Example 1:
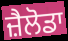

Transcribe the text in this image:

ਜ਼ੈਲੋਡਾ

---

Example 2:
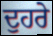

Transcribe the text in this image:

ਦੁਹਰੇ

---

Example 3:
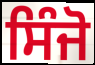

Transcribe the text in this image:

ਸਿੰਜੋ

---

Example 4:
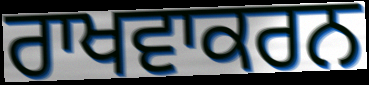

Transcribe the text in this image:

ਰਾਖਵਾਕਰਨ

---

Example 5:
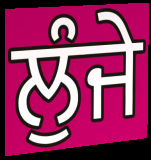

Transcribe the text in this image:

ਲੁੰਜੇ